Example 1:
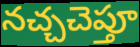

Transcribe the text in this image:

నచ్చచెప్తూ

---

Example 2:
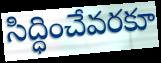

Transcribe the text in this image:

సిద్ధించేవరకూ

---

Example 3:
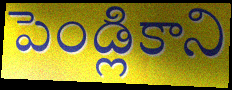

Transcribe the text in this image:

పెండ్లికాని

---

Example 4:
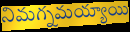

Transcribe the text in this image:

నిమగ్నమయ్యాయి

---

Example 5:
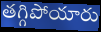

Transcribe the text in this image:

తగ్గిపోయారు